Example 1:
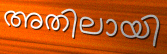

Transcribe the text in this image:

അതിലായി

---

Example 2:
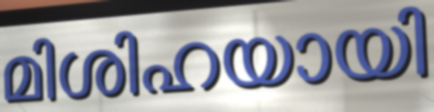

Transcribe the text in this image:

മിശിഹയായി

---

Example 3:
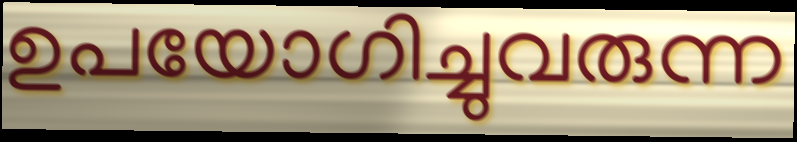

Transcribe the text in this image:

ഉപയോഗിച്ചുവരുന്ന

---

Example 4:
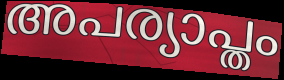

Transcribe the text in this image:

അപര്യാപ്തം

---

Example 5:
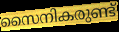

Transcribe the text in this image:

സൈനികരുണ്ട്